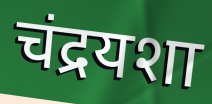
चंद्रयशा